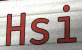
Hsi